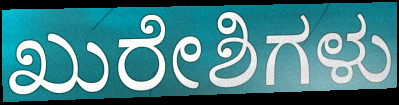
ಖುರೇಶಿಗಳು